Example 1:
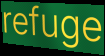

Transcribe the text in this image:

refuge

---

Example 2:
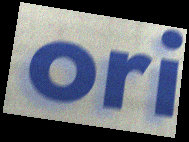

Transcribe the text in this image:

ori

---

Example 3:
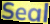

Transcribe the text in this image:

Seal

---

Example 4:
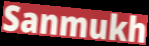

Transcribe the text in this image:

Sanmukh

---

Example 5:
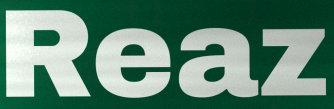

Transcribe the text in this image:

Reaz